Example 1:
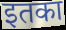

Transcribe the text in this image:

इतका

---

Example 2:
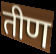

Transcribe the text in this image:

तीण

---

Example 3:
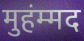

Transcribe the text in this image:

मुहंम्मद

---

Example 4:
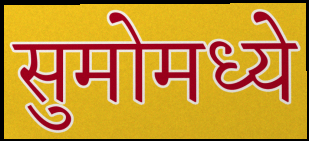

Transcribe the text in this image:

सुमोमध्ये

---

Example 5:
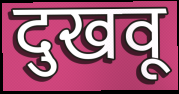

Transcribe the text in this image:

दुखवू